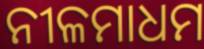
ନୀଳମାଧମ